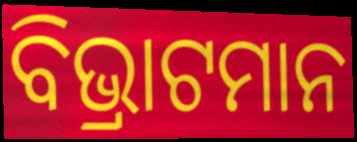
ବିଭ୍ରାଟମାନ